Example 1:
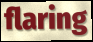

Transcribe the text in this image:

flaring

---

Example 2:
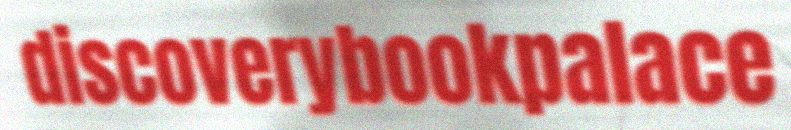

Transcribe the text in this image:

discoverybookpalace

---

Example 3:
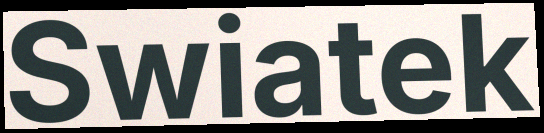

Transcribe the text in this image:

Swiatek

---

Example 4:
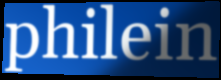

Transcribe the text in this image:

philein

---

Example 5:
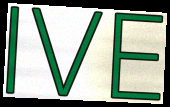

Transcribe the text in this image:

IVE